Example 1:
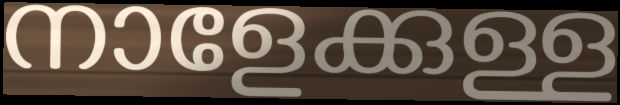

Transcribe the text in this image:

നാളേക്കുള്ള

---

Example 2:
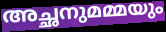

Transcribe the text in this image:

അച്ഛനുമമ്മയും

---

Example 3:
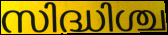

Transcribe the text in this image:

സിദ്ധിശ്ച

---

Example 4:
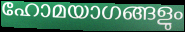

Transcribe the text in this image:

ഹോമയാഗങ്ങളും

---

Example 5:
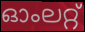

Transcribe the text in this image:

ഓംലറ്റ്